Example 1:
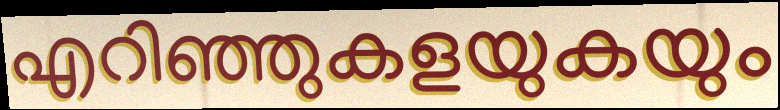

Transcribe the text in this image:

എറിഞ്ഞുകളയുകയും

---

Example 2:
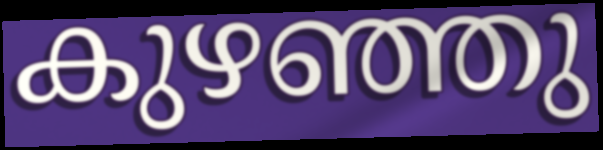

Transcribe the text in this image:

കുഴഞ്ഞു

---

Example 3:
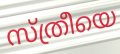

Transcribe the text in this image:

സ്ത്രീയെ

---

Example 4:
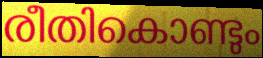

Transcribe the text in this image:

രീതികൊണ്ടും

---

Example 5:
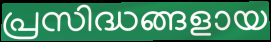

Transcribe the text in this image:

പ്രസിദ്ധങ്ങളായ